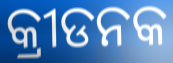
କ୍ରୀଡନକ